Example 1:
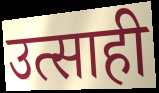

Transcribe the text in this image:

उत्साही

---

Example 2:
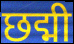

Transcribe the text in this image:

छद्मी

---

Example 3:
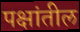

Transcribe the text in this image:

पक्षांतील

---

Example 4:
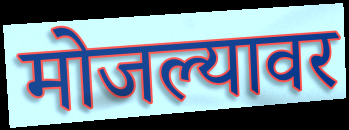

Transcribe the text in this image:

मोजल्यावर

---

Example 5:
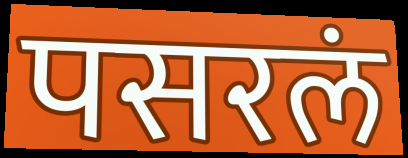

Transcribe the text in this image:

पसरलं